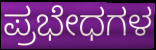
ಪ್ರಭೇಧಗಳ